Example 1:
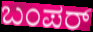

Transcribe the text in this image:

ಬಂಪರ್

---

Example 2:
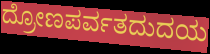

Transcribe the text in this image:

ದ್ರೋಣಪರ್ವತದುದಯ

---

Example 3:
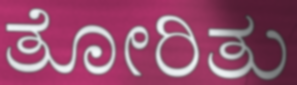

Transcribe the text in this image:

ತೋರಿತು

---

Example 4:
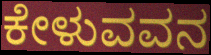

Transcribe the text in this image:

ಕೇಳುವವನ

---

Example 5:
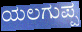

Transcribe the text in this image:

ಯಲಗುಪ್ಪ